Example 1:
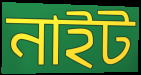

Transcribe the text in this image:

নাইট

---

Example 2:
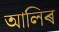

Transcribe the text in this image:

আলিৰ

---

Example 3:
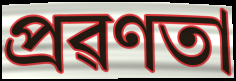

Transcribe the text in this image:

প্ৰৱণতা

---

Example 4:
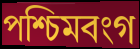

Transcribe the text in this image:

পশ্চিমবংগ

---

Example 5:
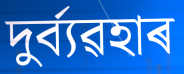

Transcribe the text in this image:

দুৰ্ব্যৱহাৰ